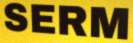
SERM